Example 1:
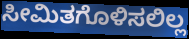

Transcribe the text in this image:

ಸೀಮಿತಗೊಳಿಸಲಿಲ್ಲ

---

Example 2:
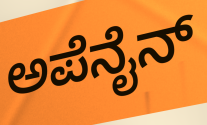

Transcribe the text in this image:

ಅಪೆನೈನ್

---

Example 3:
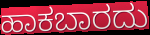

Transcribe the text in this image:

ಹಾಕಬಾರದು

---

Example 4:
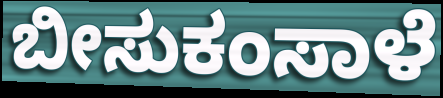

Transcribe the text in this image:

ಬೀಸುಕಂಸಾಳೆ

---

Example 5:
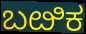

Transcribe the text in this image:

ಬೞಿಕ